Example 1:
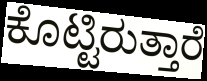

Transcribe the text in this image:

ಕೊಟ್ಟಿರುತ್ತಾರೆ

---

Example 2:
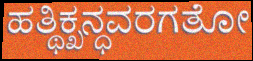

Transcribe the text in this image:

ಹತ್ಥಿಕ್ಖನ್ಧವರಗತೋ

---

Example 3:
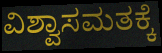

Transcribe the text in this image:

ವಿಶ್ವಾಸಮತಕ್ಕೆ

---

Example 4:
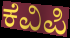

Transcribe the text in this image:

ಕೆವಿಪಿ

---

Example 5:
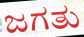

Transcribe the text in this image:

ಜಗತು